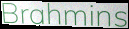
Brahmins